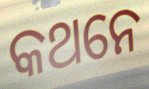
କଥନେ